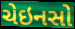
ચેઇનસો